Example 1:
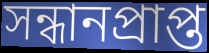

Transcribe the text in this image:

সন্ধানপ্রাপ্ত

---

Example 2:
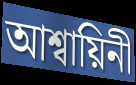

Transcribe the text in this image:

আশ্বায়িনী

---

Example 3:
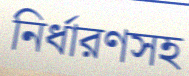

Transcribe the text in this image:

নির্ধারণসহ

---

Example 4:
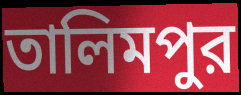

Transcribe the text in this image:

তালিমপুর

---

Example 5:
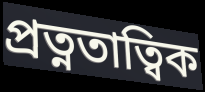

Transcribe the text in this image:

প্রত্নতাত্বিক